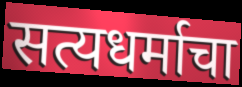
सत्यधर्माचा